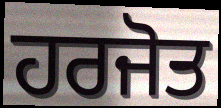
ਹਰਜੋਤ